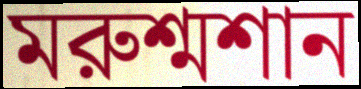
মরুশ্মশান